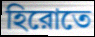
হিরোতে